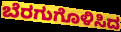
ಬೆರಗುಗೊಳಿಸಿದ